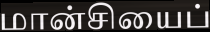
மான்சியைப்